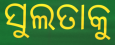
ସୁଲତାକୁ